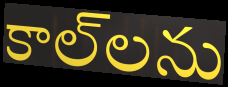
కాల్‌లను